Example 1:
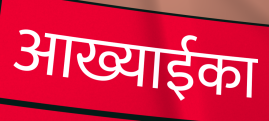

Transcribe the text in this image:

आख्याईका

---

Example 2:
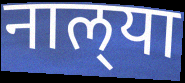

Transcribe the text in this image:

नाल्या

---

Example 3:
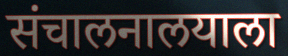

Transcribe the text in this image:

संचालनालयाला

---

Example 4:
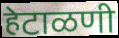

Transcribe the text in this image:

हेटाळणी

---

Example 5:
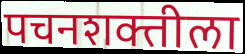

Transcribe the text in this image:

पचनशक्तीला